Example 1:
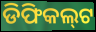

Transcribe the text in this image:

ଡିଫିକଲ୍‌ଟ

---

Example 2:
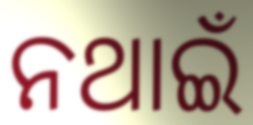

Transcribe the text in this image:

ନଥାଇଁ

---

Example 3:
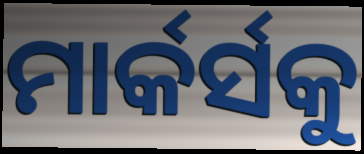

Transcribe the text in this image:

ମାର୍କର୍ସକୁ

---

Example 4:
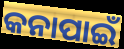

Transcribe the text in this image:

କନାପାଇଁ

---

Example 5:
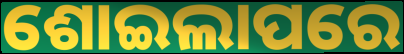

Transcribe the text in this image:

ଶୋଇଲାପରେ